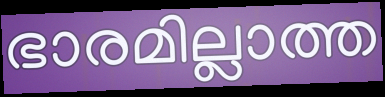
ഭാരമില്ലാത്ത